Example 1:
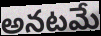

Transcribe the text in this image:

అనటమే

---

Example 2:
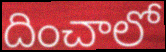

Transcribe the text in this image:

దించాలో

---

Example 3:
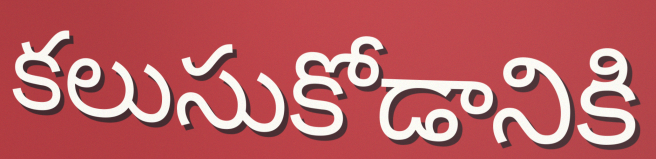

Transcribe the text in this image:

కలుసుకోడానికి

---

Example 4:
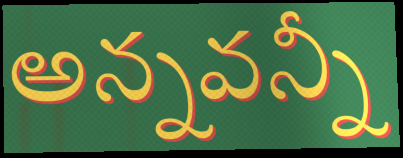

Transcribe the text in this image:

అన్నవన్నీ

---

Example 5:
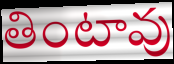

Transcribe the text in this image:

తింటావు